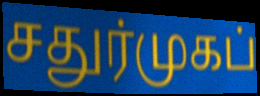
சதுர்முகப்